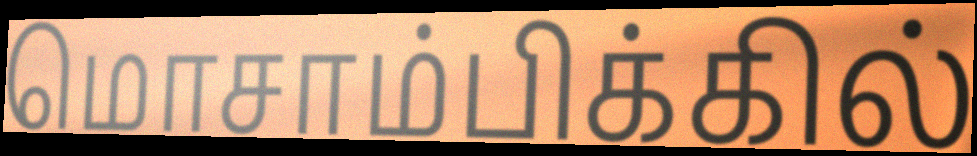
மொசாம்பிக்கில்